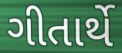
ગીતાર્થે